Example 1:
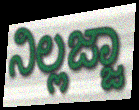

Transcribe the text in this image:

ನಿಲ್ಲಜ್ಜಾ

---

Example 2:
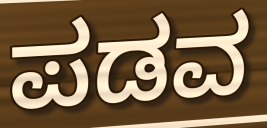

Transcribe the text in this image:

ಪಡವ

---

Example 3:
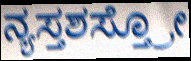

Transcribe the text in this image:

ನ್ಯಸ್ತಶಸ್ತ್ರೋ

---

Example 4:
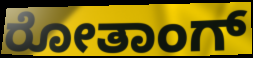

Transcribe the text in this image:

ರೋತಾಂಗ್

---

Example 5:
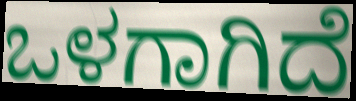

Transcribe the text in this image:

ಒಳಗಾಗಿದೆ